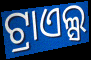
ଟ୍ରାଏଲ୍ସ